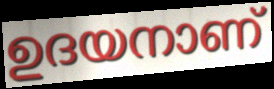
ഉദയനാണ്